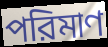
পরিমাণ